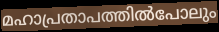
മഹാപ്രതാപത്തിൽപോലും